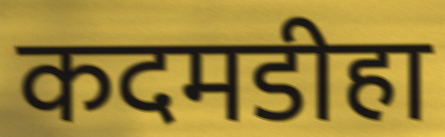
कदमडीहा